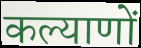
कल्याणों